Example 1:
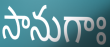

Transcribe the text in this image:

సానుగాః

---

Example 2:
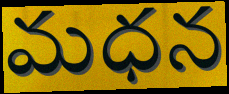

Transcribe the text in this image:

మధన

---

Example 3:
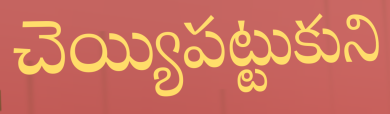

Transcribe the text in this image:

చెయ్యిపట్టుకుని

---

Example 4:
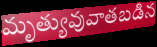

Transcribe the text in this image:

మృత్యువువాతబడిన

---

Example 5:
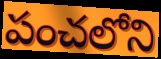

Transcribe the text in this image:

పంచలోని